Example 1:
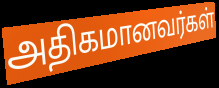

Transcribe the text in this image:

அதிகமானவர்கள்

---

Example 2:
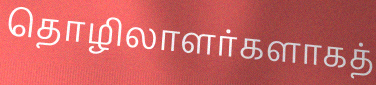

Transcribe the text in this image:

தொழிலாளர்களாகத்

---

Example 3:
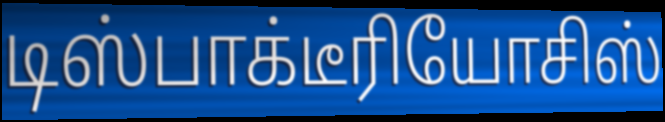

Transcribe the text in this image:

டிஸ்பாக்டீரியோசிஸ்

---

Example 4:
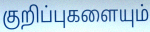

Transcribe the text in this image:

குறிப்புகளையும்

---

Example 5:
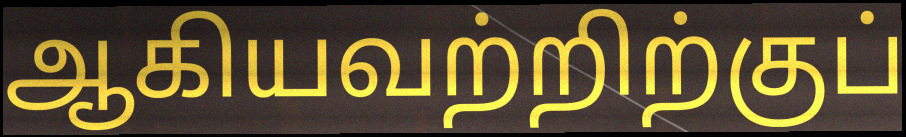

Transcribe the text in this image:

ஆகியவற்றிற்குப்